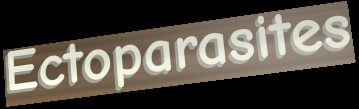
Ectoparasites